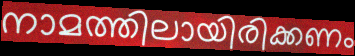
നാമത്തിലായിരിക്കണം